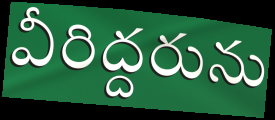
వీరిద్దరును